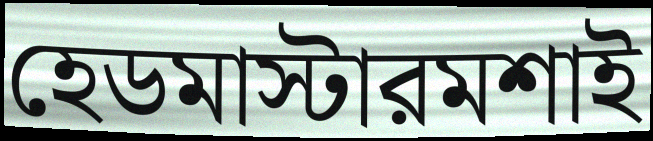
হেডমাস্টারমশাই